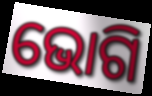
ଭୋଗି